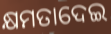
କ୍ଷମତାଦେଇ